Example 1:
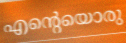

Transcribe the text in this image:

എന്റെയൊരു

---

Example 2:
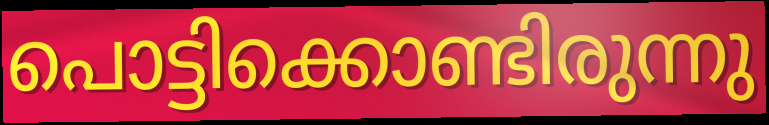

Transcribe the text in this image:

പൊട്ടിക്കൊണ്ടിരുന്നു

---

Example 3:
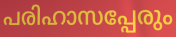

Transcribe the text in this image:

പരിഹാസപ്പേരും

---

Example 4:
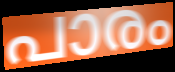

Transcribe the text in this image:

പാരം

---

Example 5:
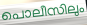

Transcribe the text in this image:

പൊലീസിലും